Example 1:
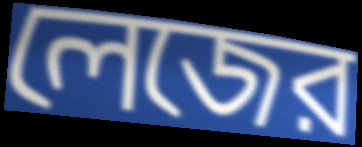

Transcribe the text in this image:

লেজের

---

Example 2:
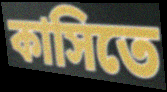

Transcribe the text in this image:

কাসিতে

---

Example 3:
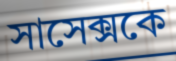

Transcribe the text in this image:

সাসেক্সকে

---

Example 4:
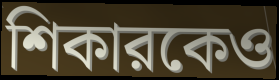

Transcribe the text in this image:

শিকারকেও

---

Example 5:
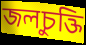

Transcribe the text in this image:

জলচুক্তি